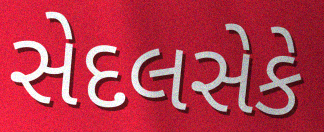
સેદલસેકે